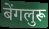
बेंगलुरू